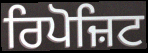
ਰਿਪੋਜ਼ਿਟ